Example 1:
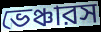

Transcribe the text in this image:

ভেঞ্চারস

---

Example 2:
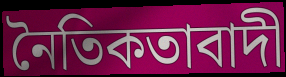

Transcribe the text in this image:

নৈতিকতাবাদী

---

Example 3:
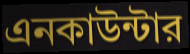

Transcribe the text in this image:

এনকাউন্টার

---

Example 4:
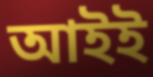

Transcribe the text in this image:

আইই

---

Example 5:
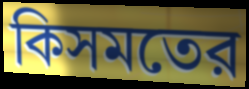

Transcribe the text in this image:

কিসমতের